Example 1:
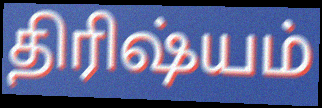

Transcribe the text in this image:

திரிஷ்யம்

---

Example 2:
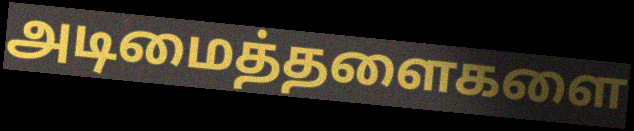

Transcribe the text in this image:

அடிமைத்தளைகளை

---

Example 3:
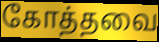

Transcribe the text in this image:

கோத்தவை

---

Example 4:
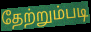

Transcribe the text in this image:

தேற்றும்படி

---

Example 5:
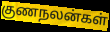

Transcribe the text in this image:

குணநலன்கள்